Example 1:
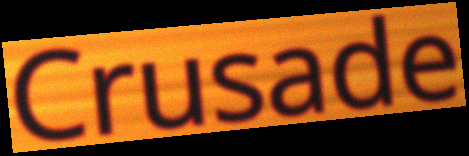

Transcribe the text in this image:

Crusade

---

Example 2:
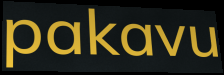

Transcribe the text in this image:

pakavu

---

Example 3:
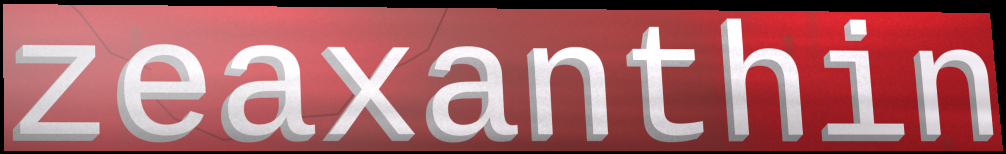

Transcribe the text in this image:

zeaxanthin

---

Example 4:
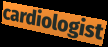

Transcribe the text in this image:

cardiologist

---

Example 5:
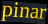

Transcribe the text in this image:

pinar